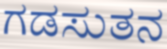
ಗಡಸುತನ